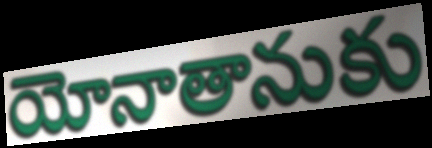
యోనాతానుకు